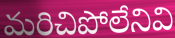
మరిచిపోలేనివి